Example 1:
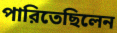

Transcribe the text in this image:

পারিতেছিলেন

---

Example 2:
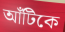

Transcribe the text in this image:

আঁটিকে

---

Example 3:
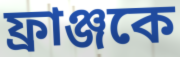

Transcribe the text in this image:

ফ্রাঞ্জকে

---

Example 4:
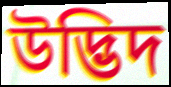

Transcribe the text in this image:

উদ্ভিদ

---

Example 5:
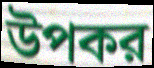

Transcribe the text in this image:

উপকর